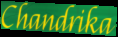
Chandrika